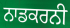
ਨਾਡਕਰਨੀ